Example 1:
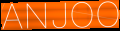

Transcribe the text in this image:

ANJOO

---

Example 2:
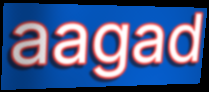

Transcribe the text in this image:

aagad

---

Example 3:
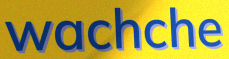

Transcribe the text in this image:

wachche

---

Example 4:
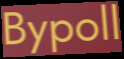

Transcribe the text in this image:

Bypoll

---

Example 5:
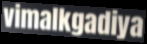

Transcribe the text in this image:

vimalkgadiya